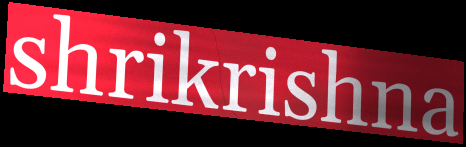
shrikrishna